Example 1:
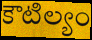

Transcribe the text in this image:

కౌటిల్యం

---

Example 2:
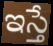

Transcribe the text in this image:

ఇస్తే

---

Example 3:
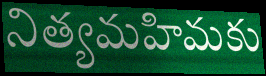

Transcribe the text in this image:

నిత్యమహిమకు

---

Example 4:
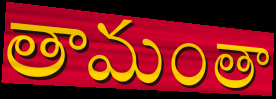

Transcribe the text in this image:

తామంతా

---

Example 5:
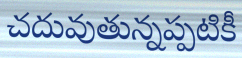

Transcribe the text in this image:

చదువుతున్నప్పటికీ